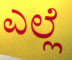
ಎಲ್ಲೆ